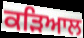
ਕੜਿਆਲ